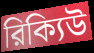
রিক্যিউ